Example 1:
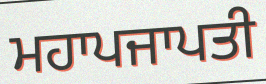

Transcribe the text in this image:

ਮਹਾਪਜਾਪਤੀ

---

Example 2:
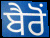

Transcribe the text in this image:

ਬੈਰੋਂ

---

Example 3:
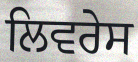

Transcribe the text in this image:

ਲਿਵਰੇਸ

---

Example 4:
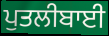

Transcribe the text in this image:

ਪੁਤਲੀਬਾਈ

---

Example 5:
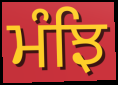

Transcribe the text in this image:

ਮੰਝਿ